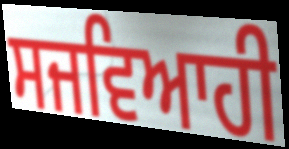
ਸਜਵਿਆਹੀ